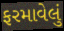
ફરમાવેલું